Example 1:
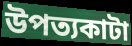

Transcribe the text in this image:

উপত্যকাটা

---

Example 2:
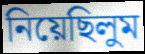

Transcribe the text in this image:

নিয়েছিলুম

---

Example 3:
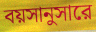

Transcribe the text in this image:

বয়সানুসারে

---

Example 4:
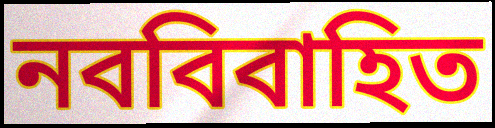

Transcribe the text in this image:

নববিবাহিত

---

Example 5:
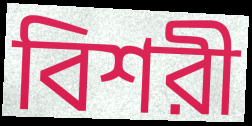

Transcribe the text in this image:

বিশরী